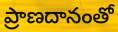
ప్రాణదానంతో